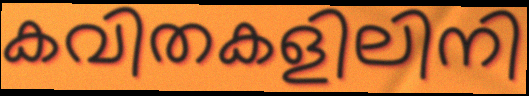
കവിതകളിലിനി